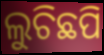
ଲୁଚିଛପି